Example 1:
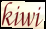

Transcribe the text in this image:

kiwi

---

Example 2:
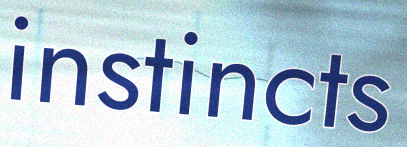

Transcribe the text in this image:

instincts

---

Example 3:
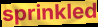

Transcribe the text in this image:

sprinkled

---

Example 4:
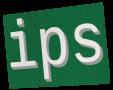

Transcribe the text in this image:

ips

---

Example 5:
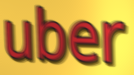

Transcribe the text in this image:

uber